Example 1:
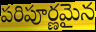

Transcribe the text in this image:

పరిపూర్ణమైన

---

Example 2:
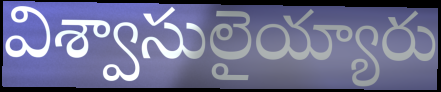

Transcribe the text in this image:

విశ్వాసులైయ్యారు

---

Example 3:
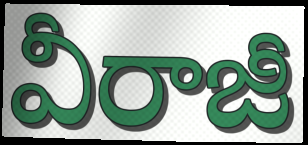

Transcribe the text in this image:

వీరాజీ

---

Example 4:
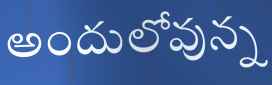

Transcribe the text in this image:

అందులోవున్న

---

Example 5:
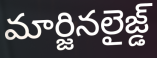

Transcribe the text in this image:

మార్జినలైజ్డ్